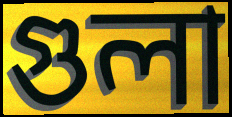
গুলা